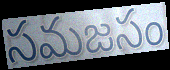
సమజసం